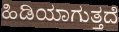
ಹಿಡಿಯಾಗುತ್ತದೆ